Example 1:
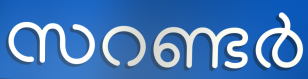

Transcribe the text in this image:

സറണ്ടർ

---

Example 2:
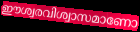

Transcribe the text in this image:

ഈശ്വരവിശ്വാസമാണോ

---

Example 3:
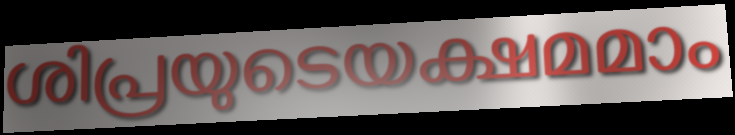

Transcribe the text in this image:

ശിപ്രയുടെയക്ഷമമാം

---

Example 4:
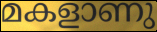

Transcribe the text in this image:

മകളാണു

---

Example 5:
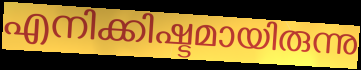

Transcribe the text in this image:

എനിക്കിഷ്ടമായിരുന്നു